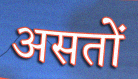
असतों